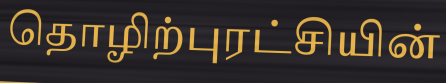
தொழிற்புரட்சியின்